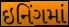
ઇનિંગમાં